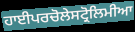
ਹਾਈਪਰਚੋਲੇਸਟ੍ਰੋਲਿਮੀਆ